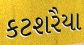
કટશરૈયા